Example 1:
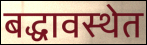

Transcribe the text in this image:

बद्धावस्थेत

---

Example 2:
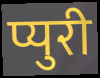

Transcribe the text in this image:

प्युरी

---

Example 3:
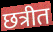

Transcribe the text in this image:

छत्रीत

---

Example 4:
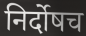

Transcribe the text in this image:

निर्दोषच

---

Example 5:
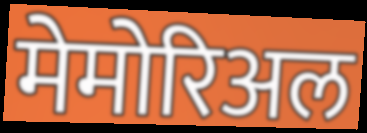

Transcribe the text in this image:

मेमोरिअल